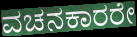
ವಚನಕಾರರೇ